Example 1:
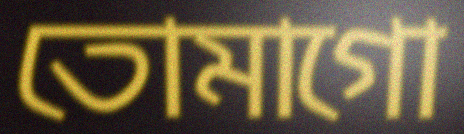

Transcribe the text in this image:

তোমাগো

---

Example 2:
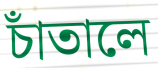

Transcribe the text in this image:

চাঁতালে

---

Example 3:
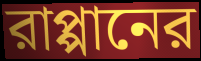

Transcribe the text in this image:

রাপ্পানের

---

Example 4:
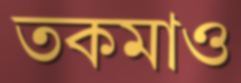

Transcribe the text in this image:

তকমাও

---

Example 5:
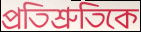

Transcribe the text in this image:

প্রতিশ্রুতিকে